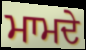
ਮਾਮਦੇ